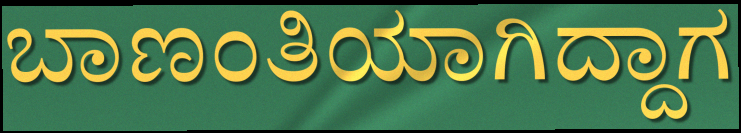
ಬಾಣಂತಿಯಾಗಿದ್ದಾಗ